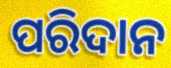
ପରିଦାନ